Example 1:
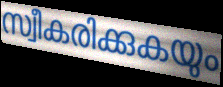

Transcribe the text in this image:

സ്വീകരിക്കുകയും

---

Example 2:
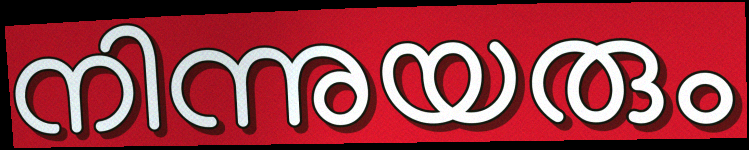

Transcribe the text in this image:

നിന്നുയരും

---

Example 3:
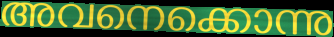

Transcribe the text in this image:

അവനെക്കൊന്നു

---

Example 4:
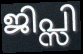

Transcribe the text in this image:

ജിപ്സി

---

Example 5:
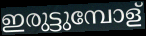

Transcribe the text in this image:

ഇരുട്ടുമ്പോള്